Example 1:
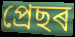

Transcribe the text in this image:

প্ৰেছৰ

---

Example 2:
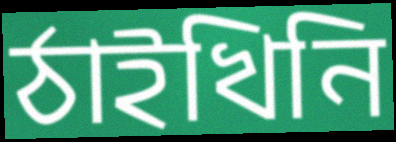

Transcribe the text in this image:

ঠাইখিনি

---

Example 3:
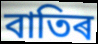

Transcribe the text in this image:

বাতিৰ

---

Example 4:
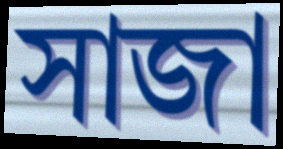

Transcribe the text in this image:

সাজা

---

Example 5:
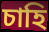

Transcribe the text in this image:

চাহি